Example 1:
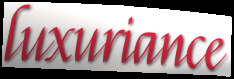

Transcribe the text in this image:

luxuriance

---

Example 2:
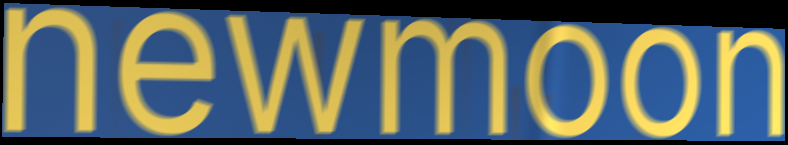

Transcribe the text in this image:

newmoon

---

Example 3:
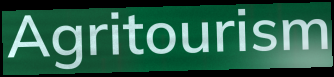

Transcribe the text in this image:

Agritourism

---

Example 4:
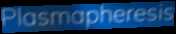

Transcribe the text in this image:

Plasmapheresis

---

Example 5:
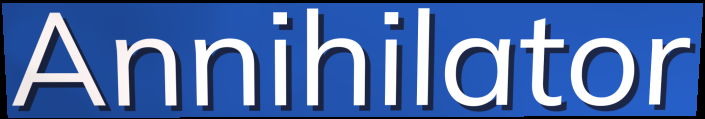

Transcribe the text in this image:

Annihilator